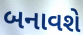
બનાવશે